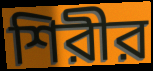
শিরীর